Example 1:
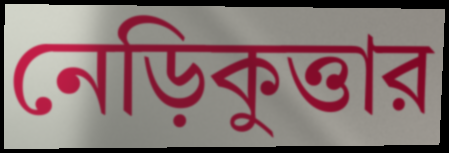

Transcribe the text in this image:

নেড়িকুত্তার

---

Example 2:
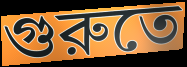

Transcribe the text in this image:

গুরুতে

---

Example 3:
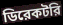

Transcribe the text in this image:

ডিরেকটরি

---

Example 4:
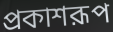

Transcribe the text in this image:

প্রকাশরূপ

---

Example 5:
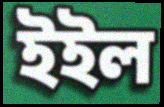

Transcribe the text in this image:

ইইল